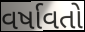
વર્ષાવતો